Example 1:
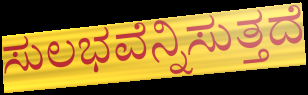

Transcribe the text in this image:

ಸುಲಭವೆನ್ನಿಸುತ್ತದೆ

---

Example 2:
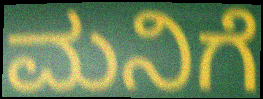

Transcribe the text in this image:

ಮನಿಗೆ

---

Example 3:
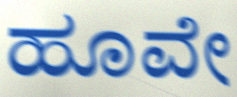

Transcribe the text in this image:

ಹೂವೇ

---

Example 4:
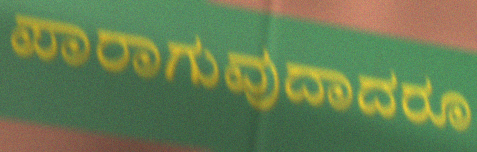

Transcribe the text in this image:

ಪಾರಾಗುವುದಾದರೂ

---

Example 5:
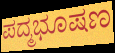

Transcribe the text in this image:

ಪದ್ಮಭೂಷಣ